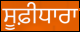
ਸੂਫ਼ੀਧਾਰਾ